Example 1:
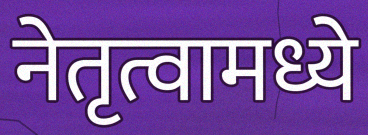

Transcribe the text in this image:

नेतृत्वामध्ये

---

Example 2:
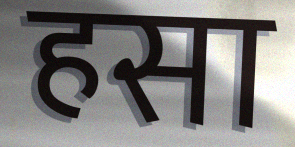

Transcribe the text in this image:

हसा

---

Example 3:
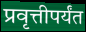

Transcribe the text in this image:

प्रवृत्तीपर्यंत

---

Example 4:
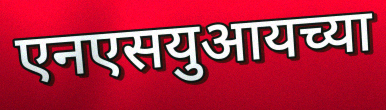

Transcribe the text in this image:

एनएसयुआयच्या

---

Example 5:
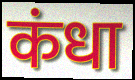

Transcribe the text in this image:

कंधा